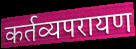
कर्तव्यपरायण